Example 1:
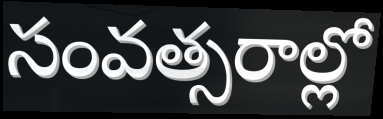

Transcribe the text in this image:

సంవత్సరాల్లో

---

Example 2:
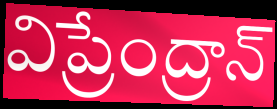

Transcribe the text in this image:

విప్రేంద్రాన్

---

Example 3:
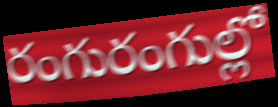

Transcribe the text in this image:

రంగురంగుల్లో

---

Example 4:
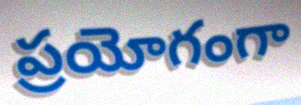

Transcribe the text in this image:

ప్రయోగంగా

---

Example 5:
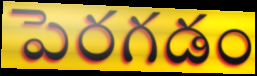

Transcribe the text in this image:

పెరగడం